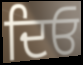
ਦਿਓ